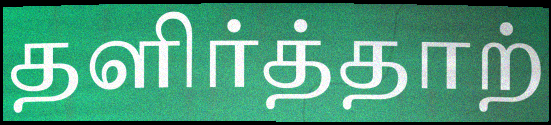
தளிர்த்தாற்